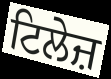
ਟਿਲੇਜ਼